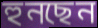
হুনছেন